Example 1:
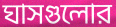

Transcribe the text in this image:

ঘাসগুলোর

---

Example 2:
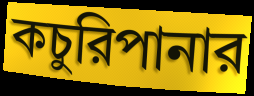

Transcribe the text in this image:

কচুরিপানার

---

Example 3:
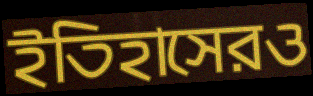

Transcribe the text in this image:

ইতিহাসেরও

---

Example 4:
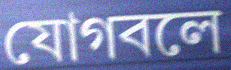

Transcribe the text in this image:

যোগবলে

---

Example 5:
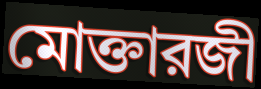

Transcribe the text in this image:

মোক্তারজী